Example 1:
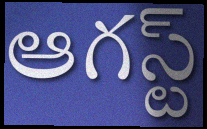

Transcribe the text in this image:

ఆగస్ట్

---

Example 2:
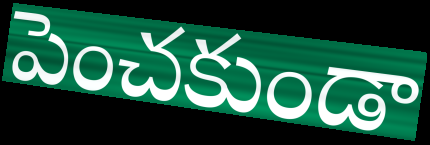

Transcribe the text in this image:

పెంచకుండా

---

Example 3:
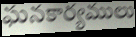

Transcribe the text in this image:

ఘనకార్యములు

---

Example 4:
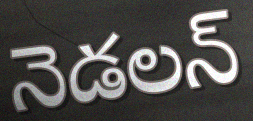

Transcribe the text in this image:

నెడలన్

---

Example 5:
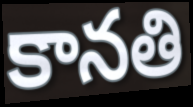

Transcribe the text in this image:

కానతి